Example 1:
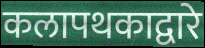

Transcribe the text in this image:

कलापथकाद्वारे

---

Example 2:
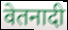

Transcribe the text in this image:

वेतनादी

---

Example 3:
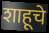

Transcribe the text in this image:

शाहूचे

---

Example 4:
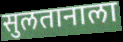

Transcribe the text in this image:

सुलतानाला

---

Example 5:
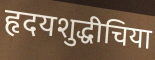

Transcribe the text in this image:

हृदयशुद्धीचिया